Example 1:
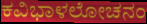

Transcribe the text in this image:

ಕವಿಭಾಳಲೋಚನಂ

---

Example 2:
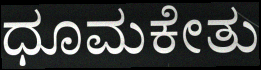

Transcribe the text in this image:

ಧೂಮಕೇತು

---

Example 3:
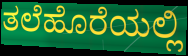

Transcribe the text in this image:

ತಲೆಹೊರೆಯಲ್ಲಿ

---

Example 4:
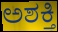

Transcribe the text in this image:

ಅಶಕ್ತಿ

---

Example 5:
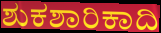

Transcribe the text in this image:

ಶುಕಶಾರಿಕಾದಿ